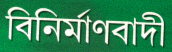
বিনিৰ্মাণবাদী